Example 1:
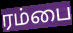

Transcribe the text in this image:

ரம்பை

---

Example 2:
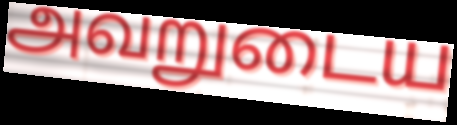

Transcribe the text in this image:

அவறுடைய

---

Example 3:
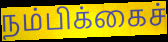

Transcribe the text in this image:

நம்பிக்கைச்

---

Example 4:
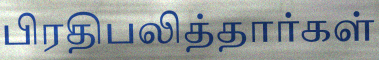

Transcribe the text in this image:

பிரதிபலித்தார்கள்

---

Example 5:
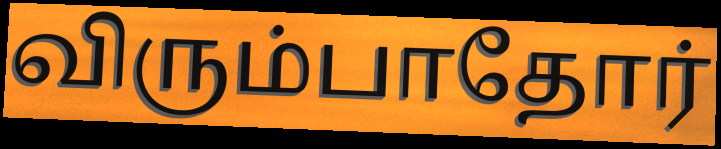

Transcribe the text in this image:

விரும்பாதோர்